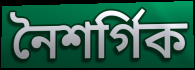
নৈশৰ্গিক